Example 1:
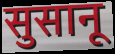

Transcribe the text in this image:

सुसानू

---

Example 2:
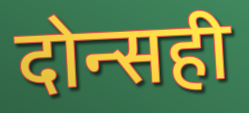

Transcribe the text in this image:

दोन्सही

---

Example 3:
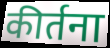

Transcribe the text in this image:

कीर्तना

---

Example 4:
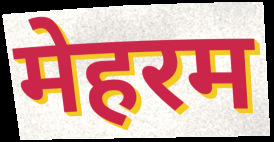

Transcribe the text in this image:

मेहरम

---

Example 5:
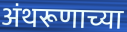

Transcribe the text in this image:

अंथरूणाच्या